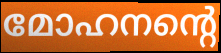
മോഹനന്റെ